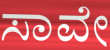
ಸಾವೇ